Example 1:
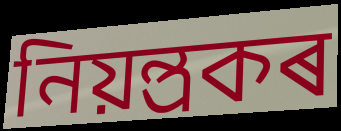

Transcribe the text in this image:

নিয়ন্ত্ৰকৰ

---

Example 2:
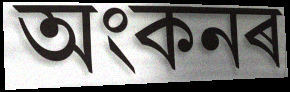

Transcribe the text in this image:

অংকনৰ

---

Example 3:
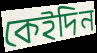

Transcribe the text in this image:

কেইদিন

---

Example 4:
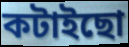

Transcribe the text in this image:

কটাইছো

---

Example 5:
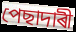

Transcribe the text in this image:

পেছাদাৰী